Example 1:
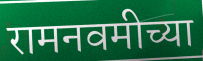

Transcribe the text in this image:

रामनवमीच्या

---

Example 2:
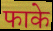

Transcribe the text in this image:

फाके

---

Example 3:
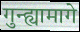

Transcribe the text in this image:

गुन्ह्यामागे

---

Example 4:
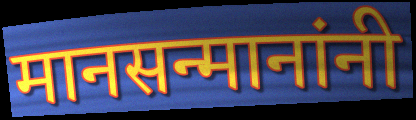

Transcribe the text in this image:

मानसन्मानांनी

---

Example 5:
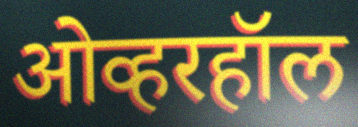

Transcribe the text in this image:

ओव्हरहॉल